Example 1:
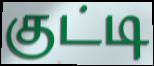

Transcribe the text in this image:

குட்டி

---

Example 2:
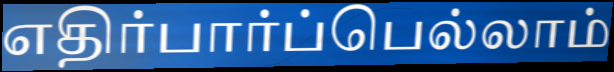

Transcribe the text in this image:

எதிர்பார்ப்பெல்லாம்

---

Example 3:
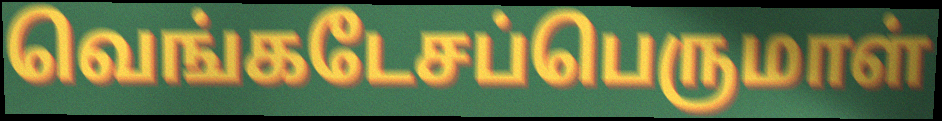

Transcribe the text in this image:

வெங்கடேசப்பெருமாள்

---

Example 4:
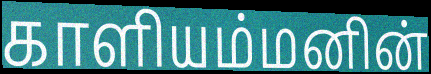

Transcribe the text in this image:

காளியம்மனின்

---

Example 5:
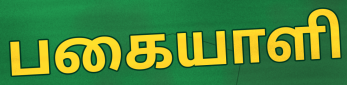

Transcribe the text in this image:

பகையாளி